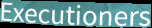
Executioners